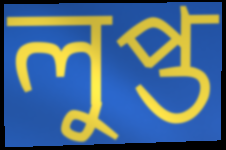
লুপ্ত